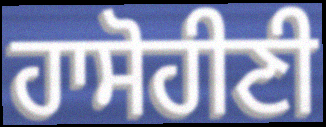
ਹਾਸੋਹੀਣੀ